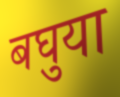
बघुया